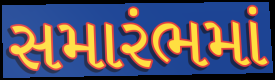
સમારંભમાં